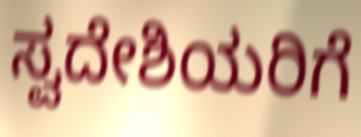
ಸ್ವದೇಶಿಯರಿಗೆ